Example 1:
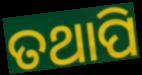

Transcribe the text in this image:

ତଥାପି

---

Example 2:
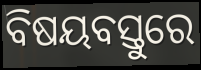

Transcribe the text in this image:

ବିଷୟବସ୍ତୁରେ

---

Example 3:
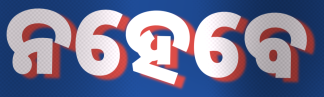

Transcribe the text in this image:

ନହେବେ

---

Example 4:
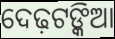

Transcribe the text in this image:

ଦେଢ଼ଟଙ୍କିଆ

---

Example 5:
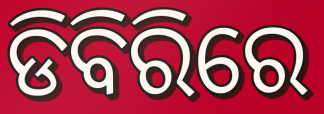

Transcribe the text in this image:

ଡିବିରିରେ